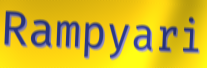
Rampyari